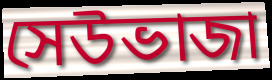
সেউভাজা